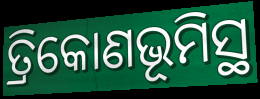
ତ୍ରିକୋଣଭୂମିସ୍ଥ